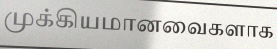
முக்கியமானவைகளாக